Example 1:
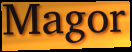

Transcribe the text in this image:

Magor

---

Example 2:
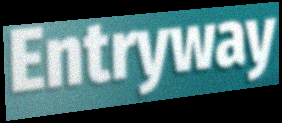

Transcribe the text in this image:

Entryway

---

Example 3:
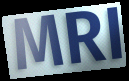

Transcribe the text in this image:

MRI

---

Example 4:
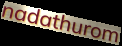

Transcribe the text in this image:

nadathurom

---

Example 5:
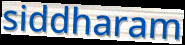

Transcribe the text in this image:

siddharam